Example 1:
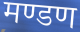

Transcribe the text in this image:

मण्डण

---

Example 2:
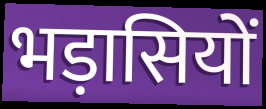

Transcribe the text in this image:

भड़ासियों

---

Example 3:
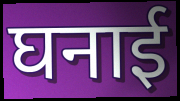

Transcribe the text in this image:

घनाई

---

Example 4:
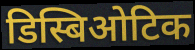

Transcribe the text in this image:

डिस्बिओटिक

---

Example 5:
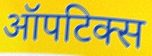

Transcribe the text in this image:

ऑपटिक्स